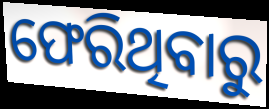
ଫେରିଥିବାରୁ